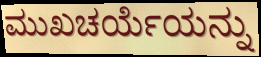
ಮುಖಚರ್ಯೆಯನ್ನು